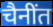
चैनींत